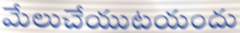
మేలుచేయుటయందు